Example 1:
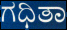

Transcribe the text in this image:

ಗಧಿತಾ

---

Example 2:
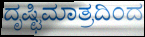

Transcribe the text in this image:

ದೃಷ್ಟಿಮಾತ್ರದಿಂದ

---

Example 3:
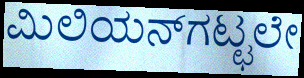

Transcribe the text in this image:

ಮಿಲಿಯನ್‌ಗಟ್ಟಲೇ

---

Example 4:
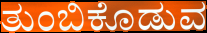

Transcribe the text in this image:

ತುಂಬಿಕೊಡುವ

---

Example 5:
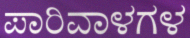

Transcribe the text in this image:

ಪಾರಿವಾಳಗಳ